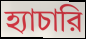
হ্যাচারি